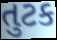
તુટક